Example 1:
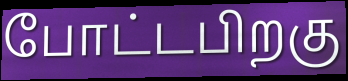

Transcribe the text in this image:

போட்டபிறகு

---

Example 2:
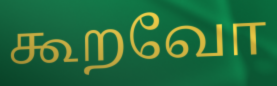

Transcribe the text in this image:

கூறவோ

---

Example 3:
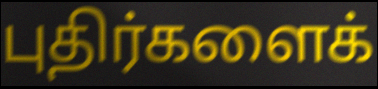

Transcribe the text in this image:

புதிர்களைக்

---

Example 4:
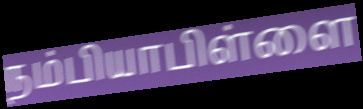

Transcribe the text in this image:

நம்பியாபிள்ளை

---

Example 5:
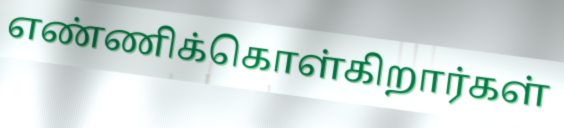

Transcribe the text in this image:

எண்ணிக்கொள்கிறார்கள்